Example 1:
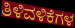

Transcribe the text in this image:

ತಿಳಿವಳಿಕೆಗಳ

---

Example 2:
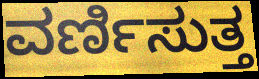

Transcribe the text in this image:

ವರ್ಣಿಸುತ್ತ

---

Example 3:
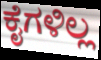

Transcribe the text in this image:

ಕೈಗಳಿಲ್ಲ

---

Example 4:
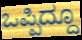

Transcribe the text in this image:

ಒಪ್ಪಿದ್ದೂ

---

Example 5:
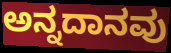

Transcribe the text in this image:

ಅನ್ನದಾನವು